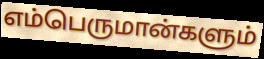
எம்பெருமான்களும்